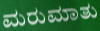
ಮರುಮಾತು